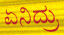
ಏನಿದ್ರು